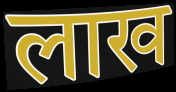
लाख